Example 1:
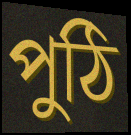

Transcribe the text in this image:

পুঠি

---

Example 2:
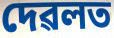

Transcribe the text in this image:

দেৱলত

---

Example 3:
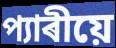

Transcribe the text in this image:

প্যাৰীয়ে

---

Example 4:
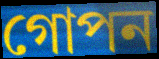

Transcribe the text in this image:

গোপন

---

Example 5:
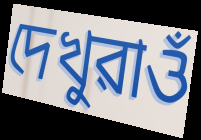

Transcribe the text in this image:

দেখুৱাওঁ